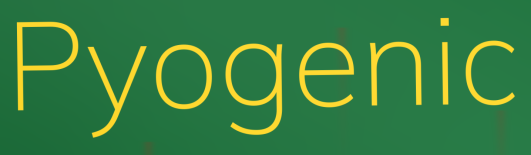
Pyogenic